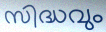
സിദ്ധവും